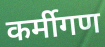
कर्मीगण